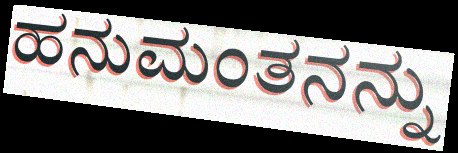
ಹನುಮಂತನನ್ನು